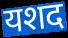
यशद